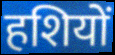
हशियों